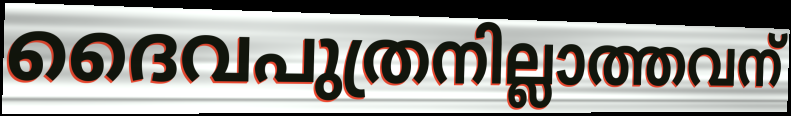
ദൈവപുത്രനില്ലാത്തവന്